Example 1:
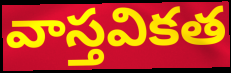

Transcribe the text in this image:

వాస్తవికత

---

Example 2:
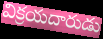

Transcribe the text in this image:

విక్రయదారుడు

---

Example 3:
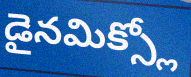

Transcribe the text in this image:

డైనమిక్స్లో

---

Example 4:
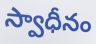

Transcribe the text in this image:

స్వాధీనం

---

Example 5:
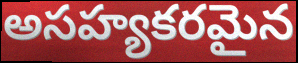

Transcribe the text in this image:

అసహ్యకరమైన